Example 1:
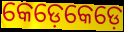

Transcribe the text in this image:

କେଡ଼େକେଡ଼େ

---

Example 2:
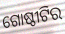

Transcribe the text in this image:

ଗୋଷ୍ଠୀଟିର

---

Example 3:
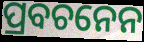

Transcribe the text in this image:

ପ୍ରବଚନେନ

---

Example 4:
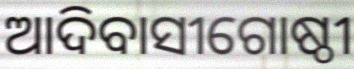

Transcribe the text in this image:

ଆଦିବାସୀଗୋଷ୍ଠୀ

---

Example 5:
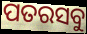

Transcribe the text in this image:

ପତରସବୁ